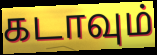
கடாவும்